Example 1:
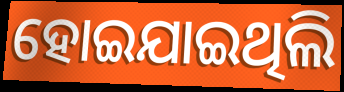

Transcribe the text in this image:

ହୋଇଯାଇଥିଲି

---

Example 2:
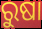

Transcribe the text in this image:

ରୁଷା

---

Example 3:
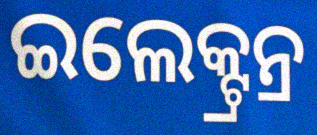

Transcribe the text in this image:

ଇଲେକ୍ଟ୍ରନ୍ର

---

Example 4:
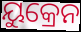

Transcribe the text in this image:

ୟୁକ୍ରେନ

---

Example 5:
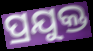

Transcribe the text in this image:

ପ୍ରଯୁକ୍ତ